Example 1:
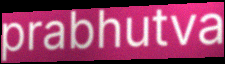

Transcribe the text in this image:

prabhutva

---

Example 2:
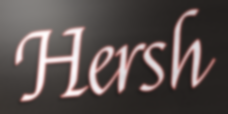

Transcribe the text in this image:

Hersh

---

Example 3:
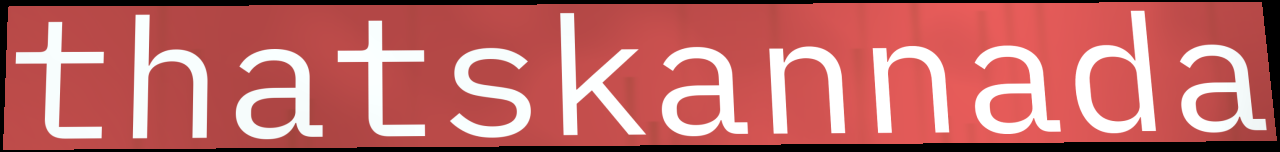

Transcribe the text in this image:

thatskannada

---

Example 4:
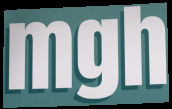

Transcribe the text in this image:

mgh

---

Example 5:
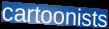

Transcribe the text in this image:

cartoonists